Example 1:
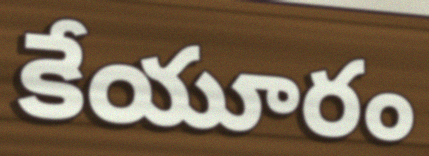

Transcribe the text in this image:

కేయూరం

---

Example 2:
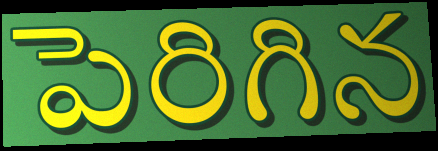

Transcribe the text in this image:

పెరిగిన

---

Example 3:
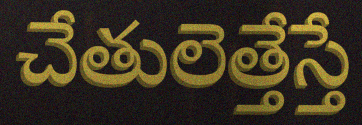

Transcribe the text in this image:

చేతులెత్తేస్తే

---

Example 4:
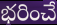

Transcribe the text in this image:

భరించే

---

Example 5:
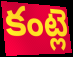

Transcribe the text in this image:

కంట్లె